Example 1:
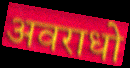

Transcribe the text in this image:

अवराधो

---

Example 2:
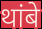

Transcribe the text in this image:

थांबे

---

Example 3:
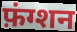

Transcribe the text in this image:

फ़ंग्शन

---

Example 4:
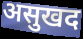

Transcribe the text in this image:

असुखद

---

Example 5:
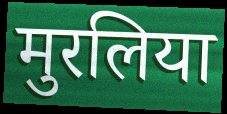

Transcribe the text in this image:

मुरलिया